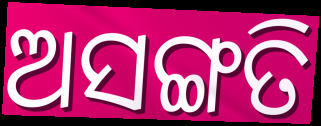
ଅସଙ୍ଗତି